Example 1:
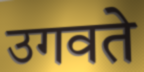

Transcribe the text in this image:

उगवते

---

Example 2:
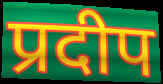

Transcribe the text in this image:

प्रदीप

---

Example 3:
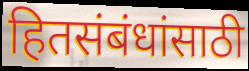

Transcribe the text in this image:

हितसंबंधांसाठी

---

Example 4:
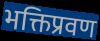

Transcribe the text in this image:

भक्तिप्रवण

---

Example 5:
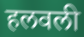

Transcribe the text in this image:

हलवली